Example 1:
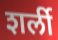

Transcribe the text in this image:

शर्ली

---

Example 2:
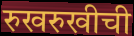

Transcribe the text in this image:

रुखरुखीची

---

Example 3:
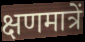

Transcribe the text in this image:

क्षणमात्रें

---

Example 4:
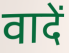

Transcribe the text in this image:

वादें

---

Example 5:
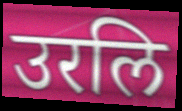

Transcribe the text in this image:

उरलि